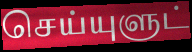
செய்யுளுட்